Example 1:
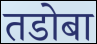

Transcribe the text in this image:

तडोबा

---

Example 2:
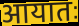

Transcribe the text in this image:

आयातः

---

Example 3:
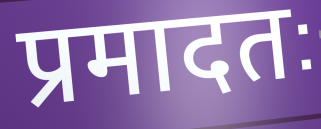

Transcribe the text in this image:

प्रमादतः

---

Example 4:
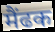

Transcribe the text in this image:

मैंढक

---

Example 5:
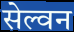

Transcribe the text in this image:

सेल्वन